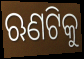
ଋଣଟିକୁ